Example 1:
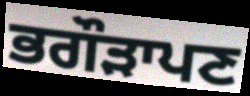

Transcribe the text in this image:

ਭਗੌੜਾਪਣ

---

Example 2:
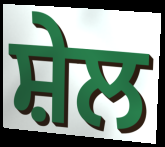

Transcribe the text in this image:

ਸ਼ੇਲ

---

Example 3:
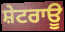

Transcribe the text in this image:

ਸ਼ੇਟਰਾਊ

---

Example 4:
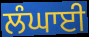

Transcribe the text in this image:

ਲੰਘਾਈ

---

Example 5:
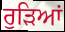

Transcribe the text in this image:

ਰੁੜਿਆਂ